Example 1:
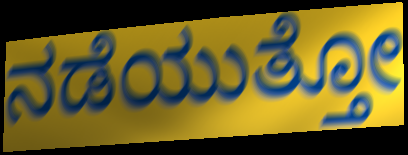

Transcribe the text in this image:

ನಡೆಯುತ್ತೋ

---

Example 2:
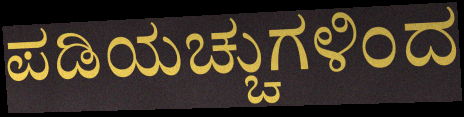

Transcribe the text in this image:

ಪಡಿಯಚ್ಚುಗಳಿಂದ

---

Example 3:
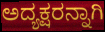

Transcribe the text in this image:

ಅದ್ಯಕ್ಷರನ್ನಾಗಿ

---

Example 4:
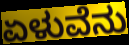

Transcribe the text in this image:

ಏಳುವೆನು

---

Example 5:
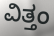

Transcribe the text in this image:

ವಿತ್ತಂ